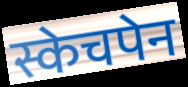
स्केचपेन